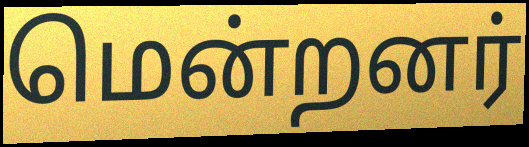
மென்றனர்